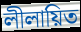
লীলায়িত